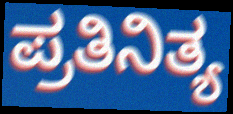
ಪ್ರತಿನಿತ್ಯ